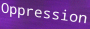
Oppression